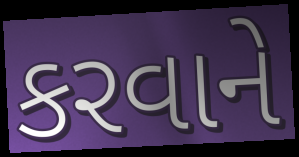
કરવાને